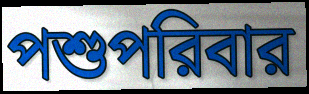
পশুপরিবার